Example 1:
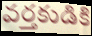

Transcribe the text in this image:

వర్తకుడికి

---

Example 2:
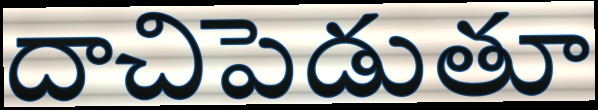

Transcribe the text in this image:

దాచిపెడుతూ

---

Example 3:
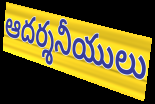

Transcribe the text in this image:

ఆదర్శనీయులు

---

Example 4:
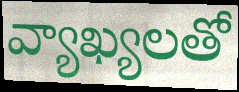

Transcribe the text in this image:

వ్యాఖ్యలతో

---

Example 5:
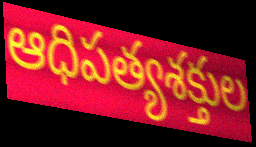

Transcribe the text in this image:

ఆధిపత్యశక్తుల